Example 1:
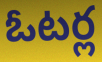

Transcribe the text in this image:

ఓటర్ల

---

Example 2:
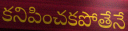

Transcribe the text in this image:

కనిపించకపోతేనే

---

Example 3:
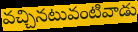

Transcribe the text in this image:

వచ్చినటువంటివాడు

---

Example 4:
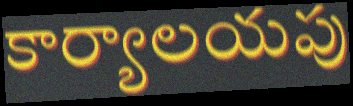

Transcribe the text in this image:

కార్యాలయపు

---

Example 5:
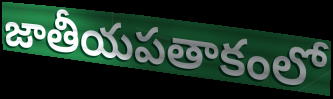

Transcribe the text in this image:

జాతీయపతాకంలో